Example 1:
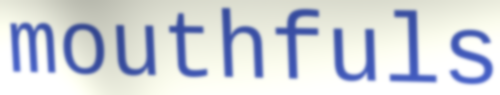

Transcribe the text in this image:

mouthfuls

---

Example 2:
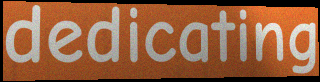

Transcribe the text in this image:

dedicating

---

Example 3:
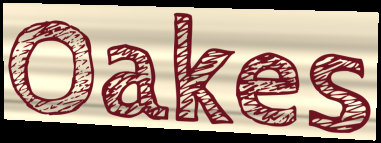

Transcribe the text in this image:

Oakes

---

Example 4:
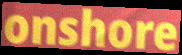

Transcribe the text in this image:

onshore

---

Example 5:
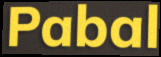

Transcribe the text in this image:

Pabal